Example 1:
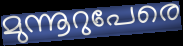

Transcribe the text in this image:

മുന്നൂറുപേരെ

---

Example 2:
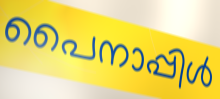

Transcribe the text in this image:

പൈനാപ്പിൾ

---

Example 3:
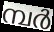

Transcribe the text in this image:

മ്പർ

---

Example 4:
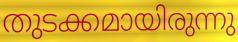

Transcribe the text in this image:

തുടക്കമായിരുന്നു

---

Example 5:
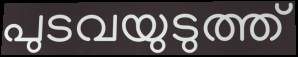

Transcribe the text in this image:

പുടവയുടുത്ത്